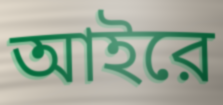
আইরে